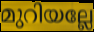
മുറിയല്ലേ